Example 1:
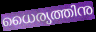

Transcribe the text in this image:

ധൈര്യത്തിനു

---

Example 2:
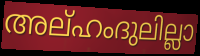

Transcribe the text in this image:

അല്ഹംദുലില്ലാ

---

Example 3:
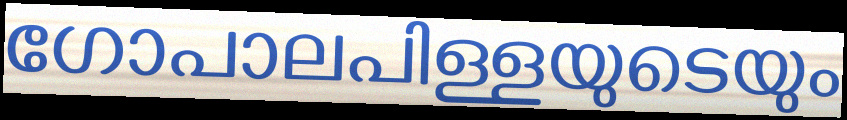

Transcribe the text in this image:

ഗോപാലപിള്ളയുടെയും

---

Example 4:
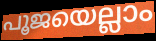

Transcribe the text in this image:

പൂജയെല്ലാം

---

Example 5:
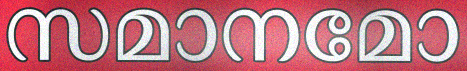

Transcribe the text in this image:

സമാനമോ